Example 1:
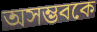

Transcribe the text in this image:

অসম্ভবকে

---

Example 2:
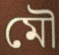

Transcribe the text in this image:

মৌ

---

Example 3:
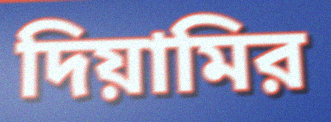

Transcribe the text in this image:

দিয়ামির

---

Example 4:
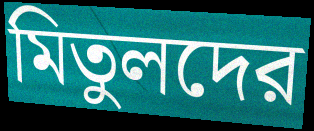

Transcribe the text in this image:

মিতুলদের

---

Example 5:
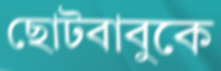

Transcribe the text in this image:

ছোটবাবুকে